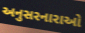
અનુસરનારાઓ